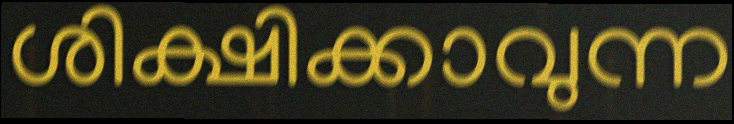
ശിക്ഷിക്കാവുന്ന